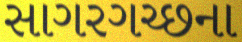
સાગરગચ્છના